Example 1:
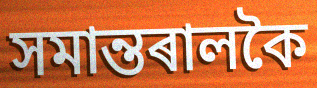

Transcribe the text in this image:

সমান্তৰালকৈ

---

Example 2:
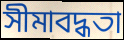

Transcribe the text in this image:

সীমাবদ্ধতা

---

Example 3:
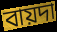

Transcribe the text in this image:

বায়দা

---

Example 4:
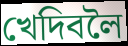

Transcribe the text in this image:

খেদিবলৈ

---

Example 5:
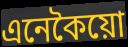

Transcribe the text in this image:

এনেকৈয়ো